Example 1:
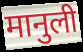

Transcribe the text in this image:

मानुली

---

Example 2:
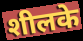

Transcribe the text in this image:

शीलके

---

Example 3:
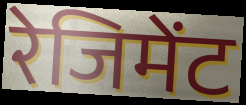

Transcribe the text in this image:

रेजिमेंट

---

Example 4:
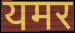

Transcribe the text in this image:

यमर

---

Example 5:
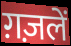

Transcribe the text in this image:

ग़ज़लें